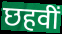
छहवीं